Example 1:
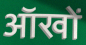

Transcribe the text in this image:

ऑखों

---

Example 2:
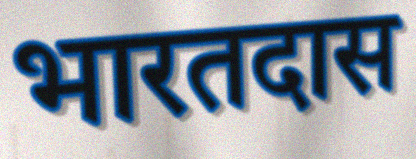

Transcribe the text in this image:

भारतदास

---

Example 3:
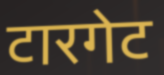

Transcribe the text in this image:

टारगेट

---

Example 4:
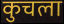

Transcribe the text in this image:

कुचला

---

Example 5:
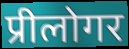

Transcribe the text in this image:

प्रीलोगर